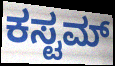
ಕಸ್ಟಮ್